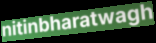
nitinbharatwagh